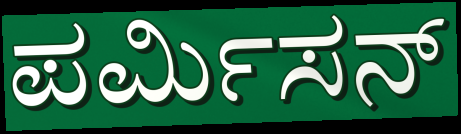
ಪರ್ಮಿಸನ್